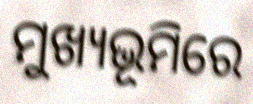
ମୁଖ୍ୟଭୂମିରେ